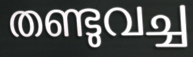
തണ്ടുവച്ച